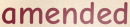
amended